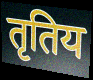
तृतिय